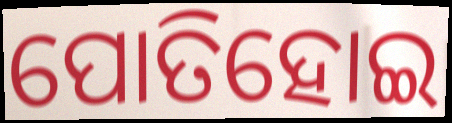
ପୋତିହୋଇ